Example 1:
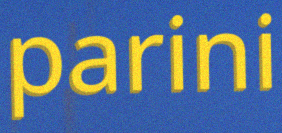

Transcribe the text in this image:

parini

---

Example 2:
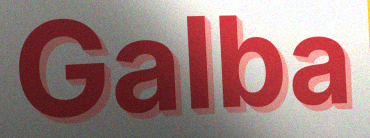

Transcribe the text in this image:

Galba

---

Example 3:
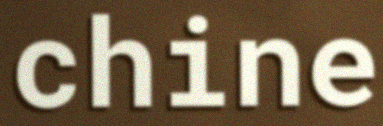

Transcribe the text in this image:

chine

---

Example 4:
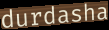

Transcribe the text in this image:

durdasha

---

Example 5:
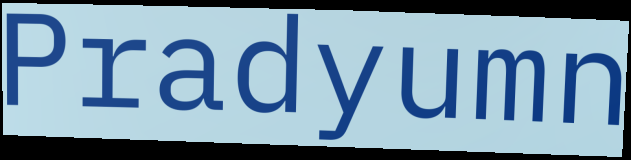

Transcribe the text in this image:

Pradyumn